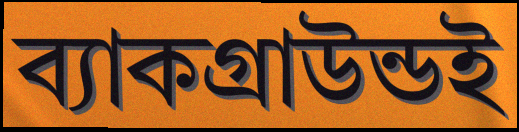
ব্যাকগ্রাউন্ডই